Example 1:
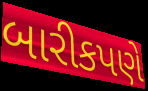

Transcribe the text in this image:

બારીકપણે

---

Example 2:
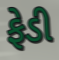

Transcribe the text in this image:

ફેડી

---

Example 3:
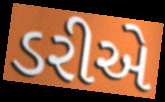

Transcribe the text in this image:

ડરીએ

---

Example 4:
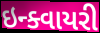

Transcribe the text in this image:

ઇન્ક્વાયરી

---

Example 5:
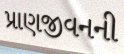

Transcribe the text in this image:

પ્રાણજીવનની